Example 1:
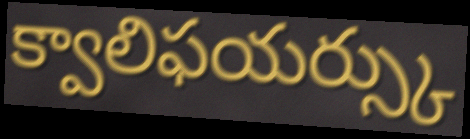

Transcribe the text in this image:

క్వాలిఫయర్స్కు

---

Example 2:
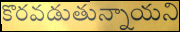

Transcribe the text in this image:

కొరవడుతున్నాయని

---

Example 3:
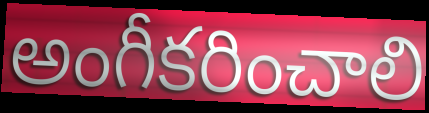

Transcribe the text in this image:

అంగీకరించాలి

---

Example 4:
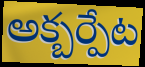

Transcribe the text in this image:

అక్బర్పేట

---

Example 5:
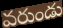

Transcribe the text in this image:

వరుండు